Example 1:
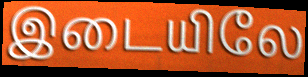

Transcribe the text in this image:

இடையிலே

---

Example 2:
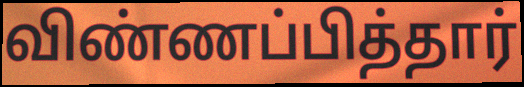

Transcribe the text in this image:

விண்ணப்பித்தார்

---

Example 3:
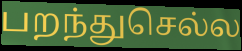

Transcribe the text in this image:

பறந்துசெல்ல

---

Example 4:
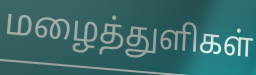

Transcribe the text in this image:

மழைத்துளிகள்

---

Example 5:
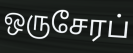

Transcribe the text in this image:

ஒருசேரப்